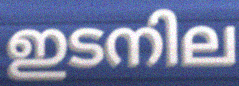
ഇടനില